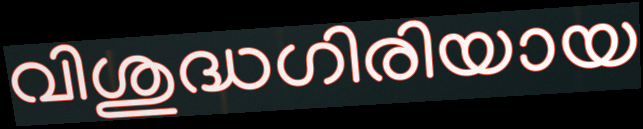
വിശുദ്ധഗിരിയായ